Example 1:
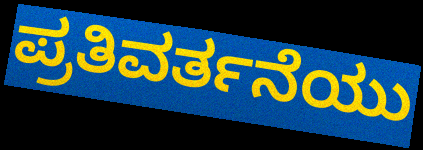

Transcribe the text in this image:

ಪ್ರತಿವರ್ತನೆಯು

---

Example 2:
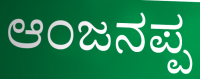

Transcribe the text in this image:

ಆಂಜನಪ್ಪ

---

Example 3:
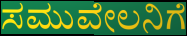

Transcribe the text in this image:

ಸಮುವೇಲನಿಗೆ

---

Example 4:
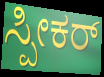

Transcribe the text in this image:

ಸ್ಪೀಕರ್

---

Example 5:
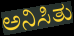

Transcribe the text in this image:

ಅನಿಸಿತು